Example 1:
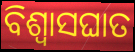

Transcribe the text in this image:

ବିଶ୍ବାସଘାତ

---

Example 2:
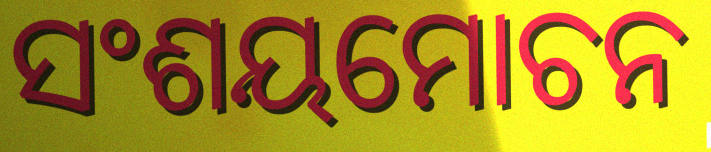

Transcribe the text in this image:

ସଂଶୟମୋଚନ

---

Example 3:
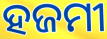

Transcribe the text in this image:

ହଜମୀ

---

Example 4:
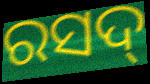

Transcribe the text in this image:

ରସଦ୍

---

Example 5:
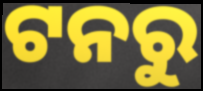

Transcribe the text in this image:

ଟନରୁ